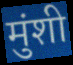
मुंशी